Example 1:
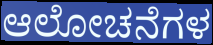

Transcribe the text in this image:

ಆಲೋಚನೆಗಳ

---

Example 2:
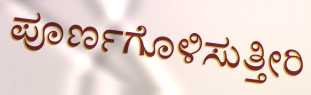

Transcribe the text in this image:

ಪೂರ್ಣಗೊಳಿಸುತ್ತೀರಿ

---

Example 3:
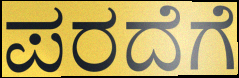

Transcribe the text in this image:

ಪರದೆಗೆ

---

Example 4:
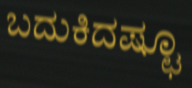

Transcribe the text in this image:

ಬದುಕಿದಷ್ಟೂ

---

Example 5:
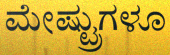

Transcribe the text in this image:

ಮೇಷ್ಟ್ರುಗಳೂ